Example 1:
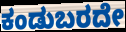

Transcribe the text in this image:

ಕಂಡುಬರದೇ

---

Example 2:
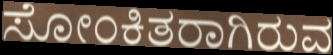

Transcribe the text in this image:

ಸೋಂಕಿತರಾಗಿರುವ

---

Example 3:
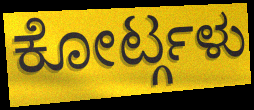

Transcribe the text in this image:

ಕೋರ್ಟ್ಗಳು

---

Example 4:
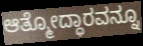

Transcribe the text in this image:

ಆತ್ಮೋದ್ಧಾರವನ್ನೂ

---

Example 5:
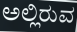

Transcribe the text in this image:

ಅಲ್ಲಿರುವ